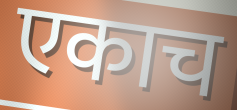
एकाच